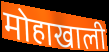
मोहाखाली